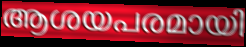
ആശയപരമായി